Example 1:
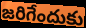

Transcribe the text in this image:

జరిగేందుకు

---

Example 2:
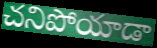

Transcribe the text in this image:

చనిపోయాడా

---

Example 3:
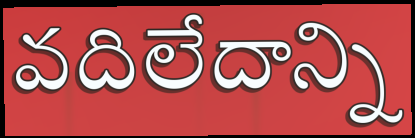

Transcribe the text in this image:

వదిలేదాన్ని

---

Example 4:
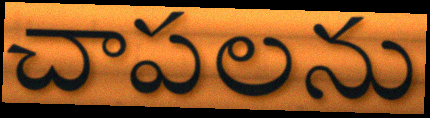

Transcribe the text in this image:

చాపలను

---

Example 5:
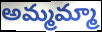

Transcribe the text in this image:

అమ్మమ్మా